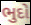
ભુદો